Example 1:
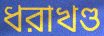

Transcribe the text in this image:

ধরাখণ্ড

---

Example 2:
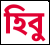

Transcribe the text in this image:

হিবু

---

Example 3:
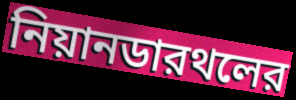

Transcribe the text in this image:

নিয়ানডারথলের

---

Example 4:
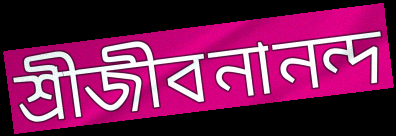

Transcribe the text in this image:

শ্রীজীবনানন্দ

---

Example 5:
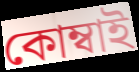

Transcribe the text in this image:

কোম্বাই